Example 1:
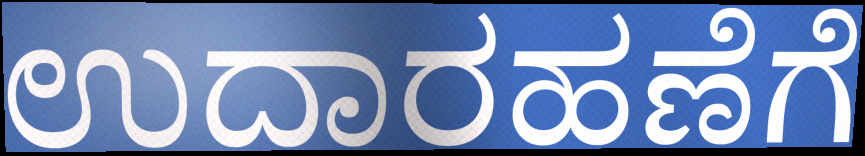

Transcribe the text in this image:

ಉದಾರಹಣೆಗೆ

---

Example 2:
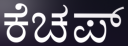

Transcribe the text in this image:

ಕೆಚಪ್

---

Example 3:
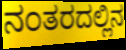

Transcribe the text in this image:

ನಂತರದಲ್ಲಿನ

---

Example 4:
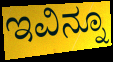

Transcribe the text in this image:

ಇವಿನ್ನೂ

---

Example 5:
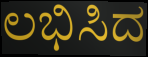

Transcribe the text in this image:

ಲಭಿಸಿದ